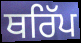
ਥਰਿੱਪ